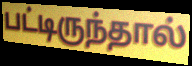
பட்டிருந்தால்